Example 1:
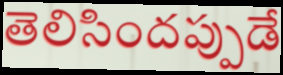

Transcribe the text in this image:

తెలిసిందప్పుడే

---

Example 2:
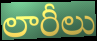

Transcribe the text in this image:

లారీలు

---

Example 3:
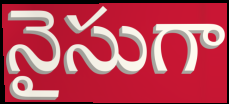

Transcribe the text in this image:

నైసుగా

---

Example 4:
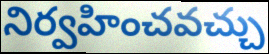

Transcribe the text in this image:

నిర్వహించవచ్చు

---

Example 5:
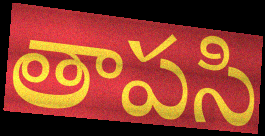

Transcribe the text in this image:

తాపసి